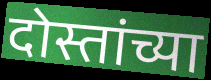
दोस्तांच्या